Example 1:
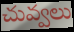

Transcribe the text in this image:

చువ్వలు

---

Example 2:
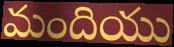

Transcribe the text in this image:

మందియు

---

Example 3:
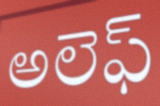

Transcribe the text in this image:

అలెఫ్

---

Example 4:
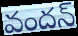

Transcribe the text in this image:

వందన్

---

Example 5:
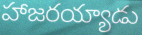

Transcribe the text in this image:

హాజరయ్యాడు